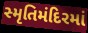
સ્મૃતિમંદિરમાં